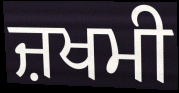
ਜ਼ਖਮੀ